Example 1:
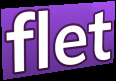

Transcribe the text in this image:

flet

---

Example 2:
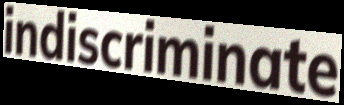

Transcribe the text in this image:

indiscriminate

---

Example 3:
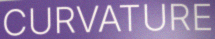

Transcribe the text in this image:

CURVATURE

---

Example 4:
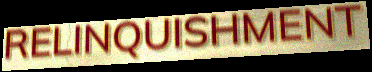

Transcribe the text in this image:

RELINQUISHMENT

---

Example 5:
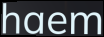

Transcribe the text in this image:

haem